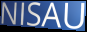
NISAU